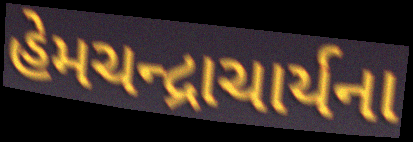
હેમચન્દ્રાચાર્યના